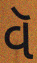
વૅ